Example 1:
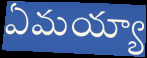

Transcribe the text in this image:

ఏమయ్యా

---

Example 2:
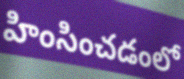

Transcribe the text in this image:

హింసించడంలో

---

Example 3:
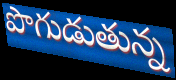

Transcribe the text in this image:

పొగుడుతున్న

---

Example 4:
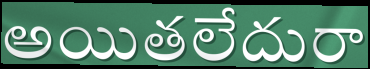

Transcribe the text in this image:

అయితలేదురా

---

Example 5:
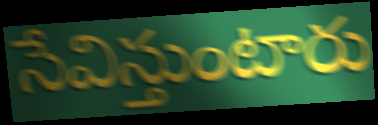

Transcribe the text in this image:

సేవిస్తుంటారు